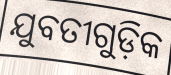
ଯୁବତୀଗୁଡ଼ିକ